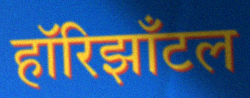
हॉरिझाँटल